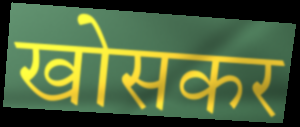
खोसकर